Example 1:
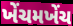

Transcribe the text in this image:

ખેંચમખેંચ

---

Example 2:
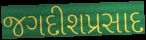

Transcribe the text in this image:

જગદીશપ્રસાદ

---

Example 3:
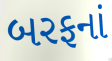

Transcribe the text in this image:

બરફનાં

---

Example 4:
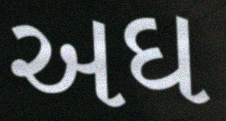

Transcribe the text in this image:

અઘ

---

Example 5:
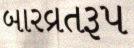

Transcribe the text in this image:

બારવ્રતરૂપ